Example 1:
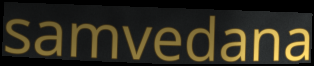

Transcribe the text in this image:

samvedana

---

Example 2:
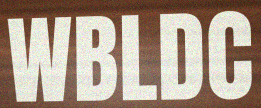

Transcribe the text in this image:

WBLDC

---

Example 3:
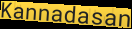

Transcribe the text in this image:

Kannadasan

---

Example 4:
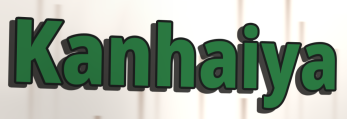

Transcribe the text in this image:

Kanhaiya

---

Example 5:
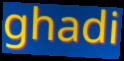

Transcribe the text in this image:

ghadi